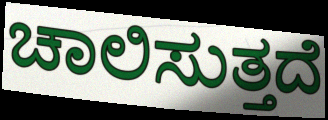
ಚಾಲಿಸುತ್ತದೆ